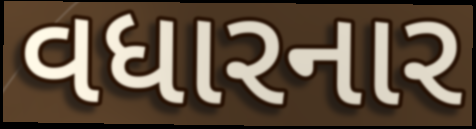
વધારનાર